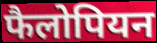
फैलोपियन